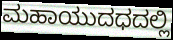
ಮಹಾಯುದಧದಲ್ಲಿ